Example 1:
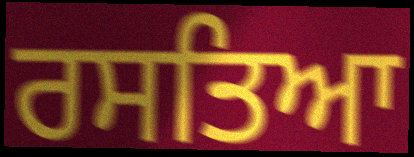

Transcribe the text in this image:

ਰਸਤਿਆ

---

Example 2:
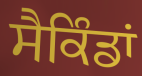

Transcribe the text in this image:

ਸੈਕਿੰਡਾਂ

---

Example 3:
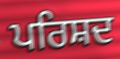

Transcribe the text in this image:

ਪਰਿਸ਼ਦ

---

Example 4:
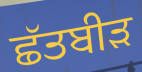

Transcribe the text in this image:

ਛੱਤਬੀੜ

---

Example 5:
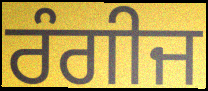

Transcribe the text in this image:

ਰੰਗੀਜ